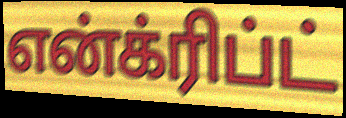
என்க்ரிப்ட்